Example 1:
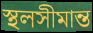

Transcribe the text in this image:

স্থলসীমান্ত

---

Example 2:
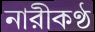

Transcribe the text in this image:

নারীকণ্ঠ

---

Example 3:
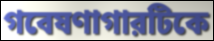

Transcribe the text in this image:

গবেষণাগারটিকে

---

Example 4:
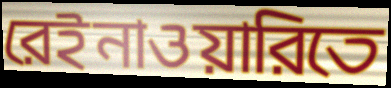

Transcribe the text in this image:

রেইনাওয়ারিতে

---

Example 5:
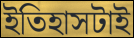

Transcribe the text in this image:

ইতিহাসটাই